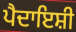
ਪੈਦਾਇਸ਼ੀ